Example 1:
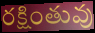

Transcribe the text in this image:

రక్షింతువు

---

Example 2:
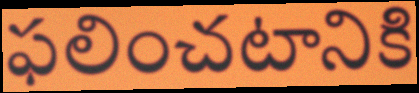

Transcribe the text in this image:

ఫలించటానికి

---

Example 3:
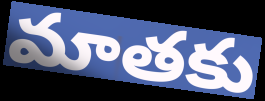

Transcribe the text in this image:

మాతకు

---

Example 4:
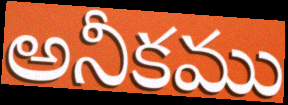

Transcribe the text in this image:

అనీకము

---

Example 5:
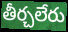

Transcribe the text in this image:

తీర్చలేరు